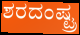
ಶರದಂಷ್ಟ್ರ